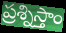
ప్రశ్నిస్తాం